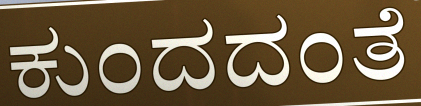
ಕುಂದದಂತೆ